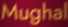
Mughal